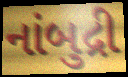
નાંબુદ્રી